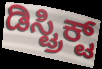
ಡಿಸ್ಟ್ರಿಕ್ಟ್